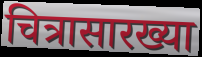
चित्रासारख्या